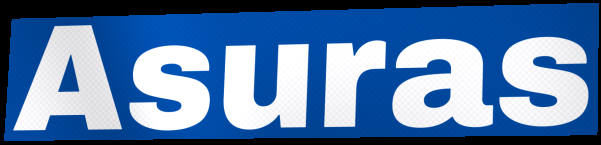
Asuras